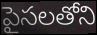
పైసలతోని